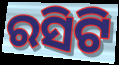
ରସିଟି